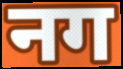
नग